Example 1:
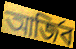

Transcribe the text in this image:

আৰ্জিব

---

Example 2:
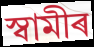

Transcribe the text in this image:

স্বামীৰ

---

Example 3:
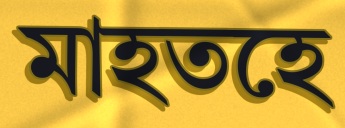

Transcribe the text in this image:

মাহতহে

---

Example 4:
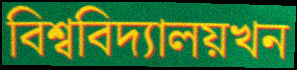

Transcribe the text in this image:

বিশ্ববিদ্যালয়খন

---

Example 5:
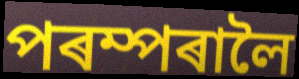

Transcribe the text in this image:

পৰম্পৰালৈ